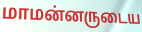
மாமன்னருடைய